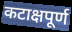
कटाक्षपूर्ण